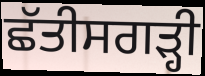
ਛੱਤੀਸਗੜ੍ਹੀ